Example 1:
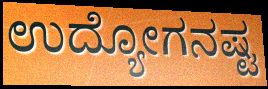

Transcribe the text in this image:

ಉದ್ಯೋಗನಷ್ಟ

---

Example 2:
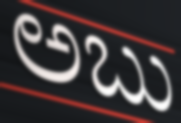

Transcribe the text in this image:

ಅಬು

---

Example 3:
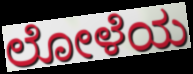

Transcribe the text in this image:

ಲೋಳೆಯ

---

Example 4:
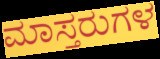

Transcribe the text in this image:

ಮಾಸ್ತರುಗಳ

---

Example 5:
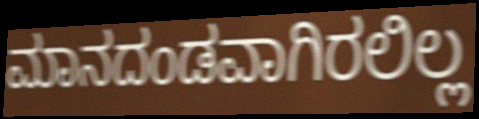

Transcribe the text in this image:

ಮಾನದಂಡವಾಗಿರಲಿಲ್ಲ